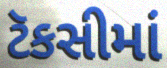
ટૅકસીમાં